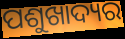
ପଶୁଖାଦ୍ୟର